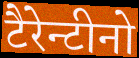
टैरेन्टीनो